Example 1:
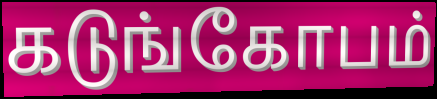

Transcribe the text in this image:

கடுங்கோபம்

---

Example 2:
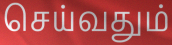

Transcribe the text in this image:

செய்வதும்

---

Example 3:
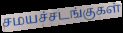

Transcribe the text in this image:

சமயச்சடங்குகள்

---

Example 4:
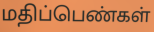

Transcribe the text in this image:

மதிப்பெண்கள்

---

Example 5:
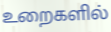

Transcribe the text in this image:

உறைகளில்